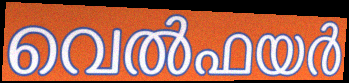
വെൽഫയർ